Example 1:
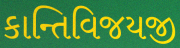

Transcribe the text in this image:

કાન્તિવિજયજી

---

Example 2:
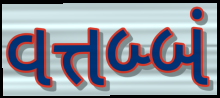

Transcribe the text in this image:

વત્તબ્બં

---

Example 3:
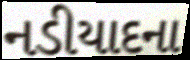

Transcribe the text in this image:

નડીયાદના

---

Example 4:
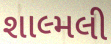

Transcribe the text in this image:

શાલ્મલી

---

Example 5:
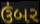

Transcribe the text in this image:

ઉંબર